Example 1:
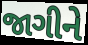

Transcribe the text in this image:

જાગીને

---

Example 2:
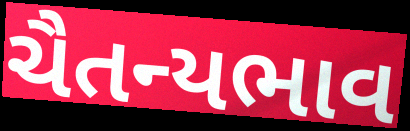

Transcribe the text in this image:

ચૈતન્યભાવ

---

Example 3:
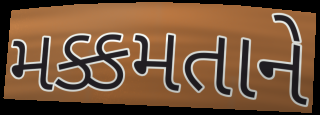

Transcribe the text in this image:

મક્કમતાને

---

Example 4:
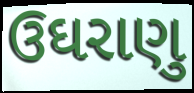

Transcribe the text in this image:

ઉઘરાણુ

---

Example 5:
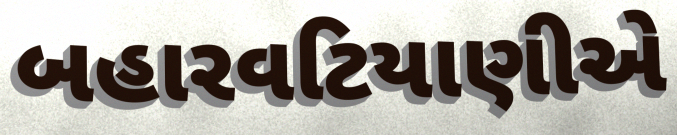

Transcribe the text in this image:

બહારવટિયાણીએ